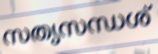
സത്യസന്ധശ്